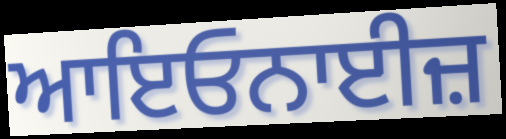
ਆਇਓਨਾਈਜ਼